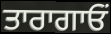
ਤਾਰਾਗਾਓਂ